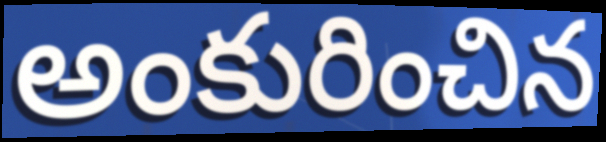
అంకురించిన